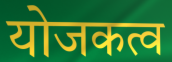
योजकत्व